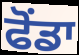
ਫੋਂਡਾ